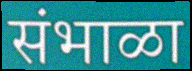
संभाळा